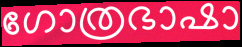
ഗോത്രഭാഷാ